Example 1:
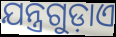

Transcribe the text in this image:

ଯନ୍ତ୍ରଗୁଡ଼ାଏ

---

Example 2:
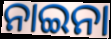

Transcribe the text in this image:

ନାଇନା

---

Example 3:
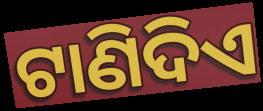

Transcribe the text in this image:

ଟାଣିଦିଏ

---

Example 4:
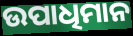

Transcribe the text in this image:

ଉପାଧିମାନ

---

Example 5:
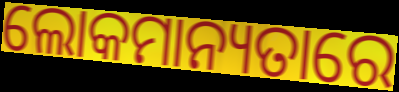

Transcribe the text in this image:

ଲୋକମାନ୍ୟତାରେ